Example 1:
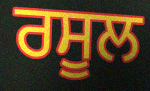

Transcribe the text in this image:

ਰਸੂਲ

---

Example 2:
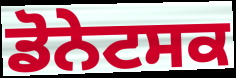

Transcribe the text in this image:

ਡੋਨੇਟਸਕ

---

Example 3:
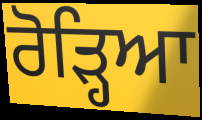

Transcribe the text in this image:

ਰੋੜ੍ਹਿਆ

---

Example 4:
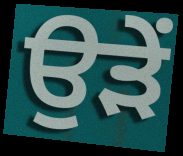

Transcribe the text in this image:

ਉੜੇਂ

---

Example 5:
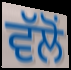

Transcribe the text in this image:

ਵੱਲੋਂ